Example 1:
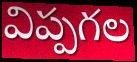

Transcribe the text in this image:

విప్పగల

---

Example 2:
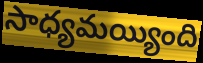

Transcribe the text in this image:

సాధ్యమయ్యింది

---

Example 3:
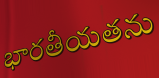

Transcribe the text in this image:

భారతీయతను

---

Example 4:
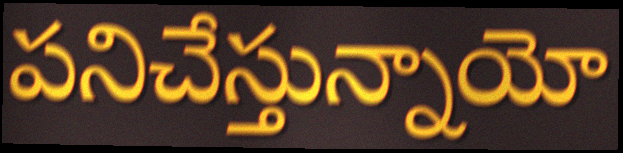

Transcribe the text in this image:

పనిచేస్తున్నాయో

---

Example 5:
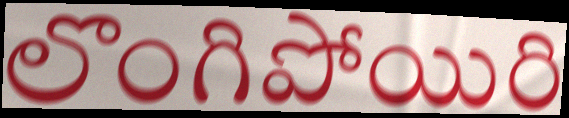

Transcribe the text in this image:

లొంగిపోయిరి